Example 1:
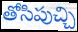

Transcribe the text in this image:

తోసిపుచ్చి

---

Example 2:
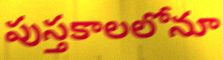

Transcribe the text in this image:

పుస్తకాలలోనూ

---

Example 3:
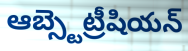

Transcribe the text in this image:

ఆబ్స్టెట్రీషియన్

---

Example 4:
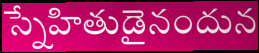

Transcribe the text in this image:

స్నేహితుడైనందున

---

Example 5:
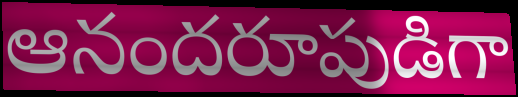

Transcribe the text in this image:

ఆనందరూపుడిగా